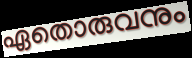
ഏതൊരുവനും